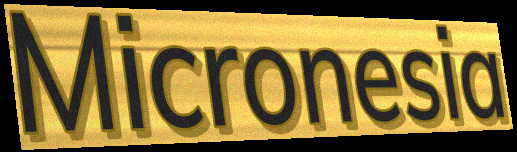
Micronesia